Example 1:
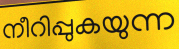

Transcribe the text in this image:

നീറിപ്പുകയുന്ന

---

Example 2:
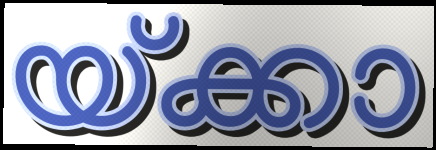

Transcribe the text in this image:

യ്‌ക്കാ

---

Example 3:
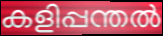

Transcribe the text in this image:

കളിപ്പന്തൽ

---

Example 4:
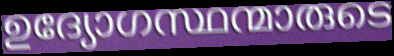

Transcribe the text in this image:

ഉദ്യോഗസ്ഥന്മാരുടെ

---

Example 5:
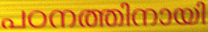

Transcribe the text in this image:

പഠനത്തിനായി